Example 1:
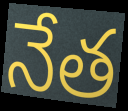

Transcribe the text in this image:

నేత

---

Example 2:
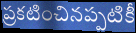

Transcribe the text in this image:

ప్రకటించినప్పటికీ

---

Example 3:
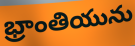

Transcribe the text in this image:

భ్రాంతియును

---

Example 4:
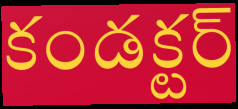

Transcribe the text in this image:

కండక్టర్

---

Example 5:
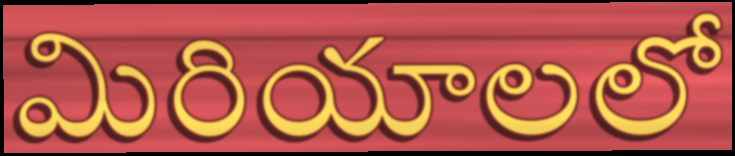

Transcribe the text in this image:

మిరియాలలో